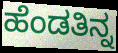
ಹೆಂಡತಿನ್ನ